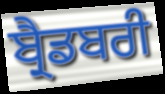
ਬ੍ਰੈਡਬਰੀ